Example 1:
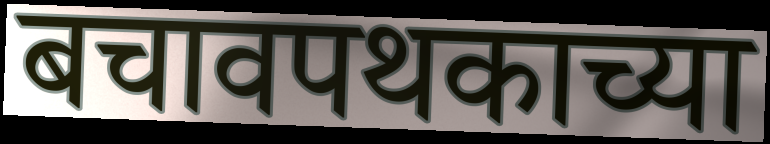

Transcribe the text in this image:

बचावपथकाच्या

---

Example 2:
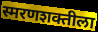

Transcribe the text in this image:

स्मरणशक्तीला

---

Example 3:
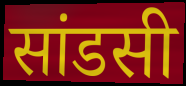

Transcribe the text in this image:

सांडसी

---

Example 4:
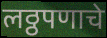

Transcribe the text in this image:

लठ्ठपणाचे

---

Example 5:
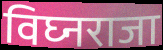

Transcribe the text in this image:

विघ्नराजा